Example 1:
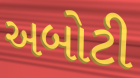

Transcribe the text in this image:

અબોટી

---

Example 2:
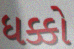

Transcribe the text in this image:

ધક્કો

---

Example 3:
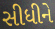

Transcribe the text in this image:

સીધીને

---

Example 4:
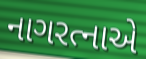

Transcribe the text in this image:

નાગરત્નાએ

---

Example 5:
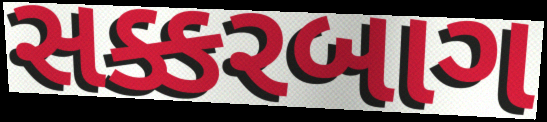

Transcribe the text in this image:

સક્કરબાગ